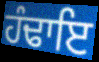
ਹੰਢਾਇ